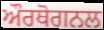
ਔਰਥੋਗਨਲ